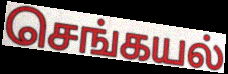
செங்கயல்